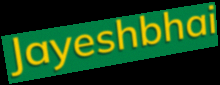
Jayeshbhai